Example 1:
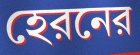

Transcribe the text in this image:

হেরনের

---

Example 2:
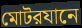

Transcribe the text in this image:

মোটরযানে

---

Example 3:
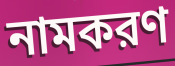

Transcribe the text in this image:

নামকরণ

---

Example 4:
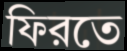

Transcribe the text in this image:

ফিরতে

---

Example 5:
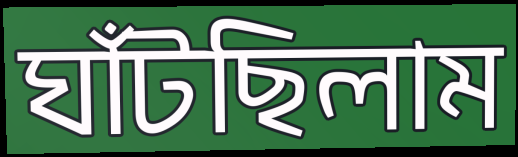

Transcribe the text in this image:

ঘাঁটছিলাম